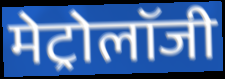
मेट्रोलॉजी